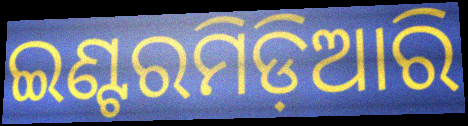
ଇଣ୍ଟରମିଡ଼ିଆରି